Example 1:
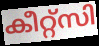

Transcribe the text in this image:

കീറ്റ്സി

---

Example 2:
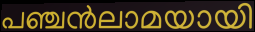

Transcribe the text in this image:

പഞ്ചൻലാമയായി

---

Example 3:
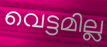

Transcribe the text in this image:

വെട്ടമില്ല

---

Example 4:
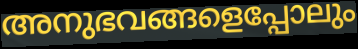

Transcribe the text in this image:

അനുഭവങ്ങളെപ്പോലും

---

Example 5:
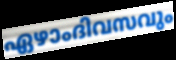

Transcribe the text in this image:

ഏഴാംദിവസവും